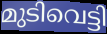
മുടിവെട്ടി